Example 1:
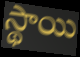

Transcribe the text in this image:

స్థాయి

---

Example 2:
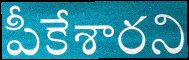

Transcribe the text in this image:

పీకేశారని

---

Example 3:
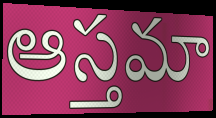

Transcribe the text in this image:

ఆస్తమా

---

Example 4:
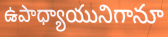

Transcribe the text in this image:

ఉపాధ్యాయునిగానూ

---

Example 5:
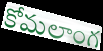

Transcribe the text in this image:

కోమలాంగ